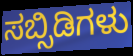
ಸಬ್ಸಿಡಿಗಳು